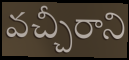
వచ్చీరాని